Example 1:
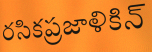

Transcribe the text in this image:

రసికప్రజాళికిన్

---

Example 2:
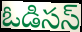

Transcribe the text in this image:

ఓడిసస్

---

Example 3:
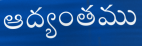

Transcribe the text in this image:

ఆద్యంతము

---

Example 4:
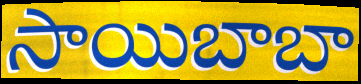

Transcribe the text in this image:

సాయిబాబా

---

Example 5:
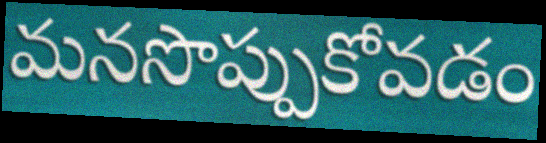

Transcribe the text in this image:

మనసొప్పుకోవడం